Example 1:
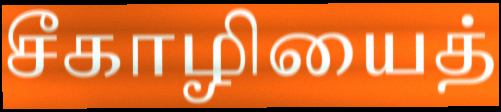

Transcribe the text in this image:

சீகாழியைத்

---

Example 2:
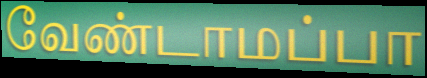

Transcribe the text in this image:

வேண்டாமப்பா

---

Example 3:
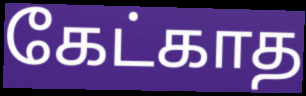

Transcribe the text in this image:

கேட்காத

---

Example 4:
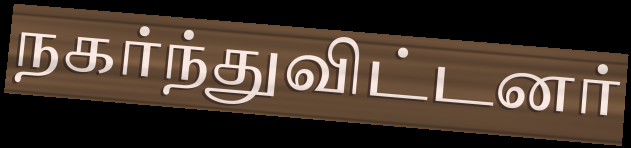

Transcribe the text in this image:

நகர்ந்துவிட்டனர்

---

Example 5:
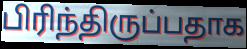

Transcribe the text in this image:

பிரிந்திருப்பதாக